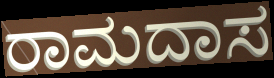
ರಾಮದಾಸ